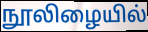
நூலிழையில்